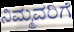
ನಿಮ್ಮವರಿಗೆ